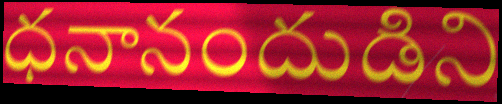
ధనానందుడిని